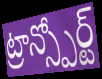
ట్రాన్స్పోర్ట్